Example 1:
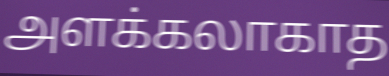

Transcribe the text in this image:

அளக்கலாகாத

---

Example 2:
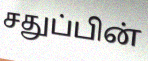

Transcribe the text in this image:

சதுப்பின்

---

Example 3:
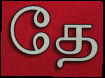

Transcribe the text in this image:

தே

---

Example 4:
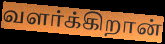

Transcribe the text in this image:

வளர்க்கிறான்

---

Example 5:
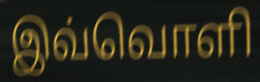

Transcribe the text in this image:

இவ்வொளி